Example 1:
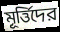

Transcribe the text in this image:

মূর্ত্তিদের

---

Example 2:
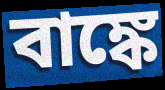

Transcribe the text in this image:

বাঙ্কে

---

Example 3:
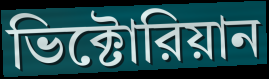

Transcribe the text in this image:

ভিক্টোরিয়ান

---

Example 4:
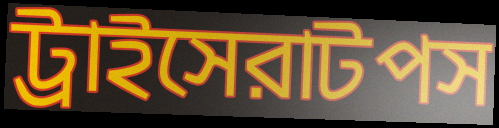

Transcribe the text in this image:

ট্রাইসেরাটপস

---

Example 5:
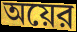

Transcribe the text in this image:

অয়ের